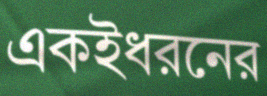
একইধরনের